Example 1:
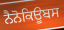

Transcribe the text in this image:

ਨੈਨੋਕਿਊਬਸ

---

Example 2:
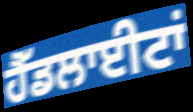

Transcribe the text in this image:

ਹੈੱਡਲਾਈਟਾਂ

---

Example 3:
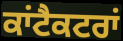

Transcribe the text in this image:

ਕਾਂਟੈਕਟਰਾਂ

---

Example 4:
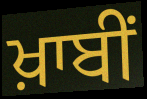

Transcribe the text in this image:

ਖ਼ਾਬੀਂ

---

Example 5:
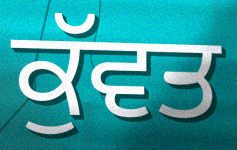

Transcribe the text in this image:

ਕੁੱਵਤ